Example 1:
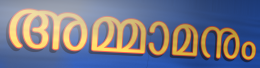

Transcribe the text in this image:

അമ്മാമനും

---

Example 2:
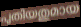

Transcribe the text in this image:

പുതിയതുമായ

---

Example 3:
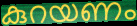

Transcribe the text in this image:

കുറയണം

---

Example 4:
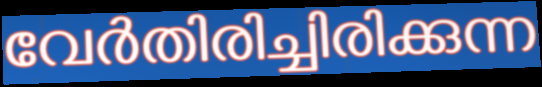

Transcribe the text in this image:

വേർതിരിച്ചിരിക്കുന്ന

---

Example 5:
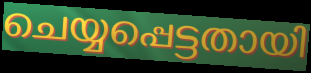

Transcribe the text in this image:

ചെയ്യപ്പെട്ടതായി